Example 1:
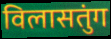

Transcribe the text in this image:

विलासतुंग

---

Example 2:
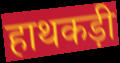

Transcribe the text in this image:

हाथकड़ी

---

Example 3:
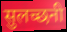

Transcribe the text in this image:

सुलच्छनी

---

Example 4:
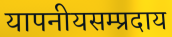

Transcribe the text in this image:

यापनीयसम्प्रदाय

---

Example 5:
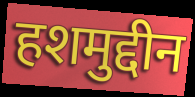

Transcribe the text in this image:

हशमुद्दीन